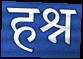
हश्न